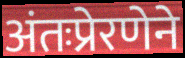
अंतःप्रेरणेने